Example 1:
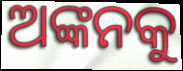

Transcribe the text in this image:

ଅଙ୍କନକୁ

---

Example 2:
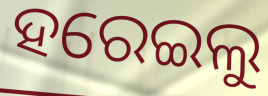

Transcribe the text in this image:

ହରେଇଲୁ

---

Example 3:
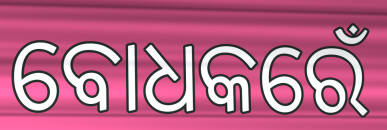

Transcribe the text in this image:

ବୋଧକରେଁ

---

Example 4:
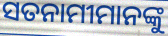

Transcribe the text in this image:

ସତନାମୀମାନଙ୍କୁ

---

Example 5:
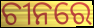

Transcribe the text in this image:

ଚୀନରେ